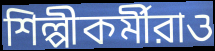
শিল্পীকর্মীরাও